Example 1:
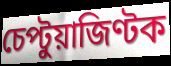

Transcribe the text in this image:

চেপ্টুয়াজিণ্টক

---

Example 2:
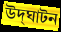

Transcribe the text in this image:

উদ্‌ঘাটন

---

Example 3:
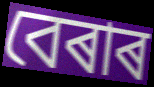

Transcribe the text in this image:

বেৰাৰ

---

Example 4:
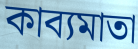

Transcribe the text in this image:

কাব্যমাতা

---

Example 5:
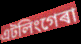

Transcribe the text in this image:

এটলিংগেৰা